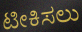
ಟೀಕಿಸಲು